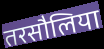
तरसौलिया